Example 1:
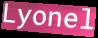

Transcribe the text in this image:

Lyonel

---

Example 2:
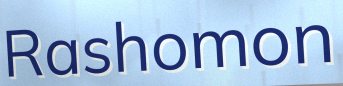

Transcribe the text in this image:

Rashomon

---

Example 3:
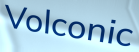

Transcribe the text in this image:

Volconic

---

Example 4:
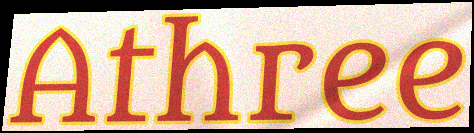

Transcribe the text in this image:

Athree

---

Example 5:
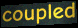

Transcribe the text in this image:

coupled